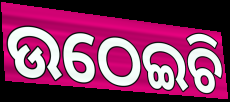
ଉଠେଇଚି